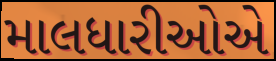
માલધારીઓએ